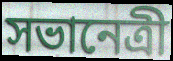
সভানেত্রী